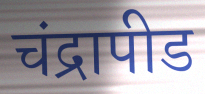
चंद्रापीड